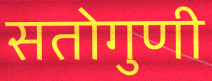
सतोगुणी